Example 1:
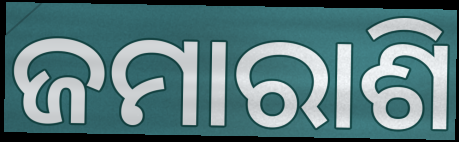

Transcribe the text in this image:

ଜମାରାଶି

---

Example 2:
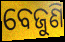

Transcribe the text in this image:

ବେଜୁଣି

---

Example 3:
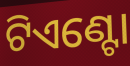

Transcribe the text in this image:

ଟିଏଣ୍ଟୋ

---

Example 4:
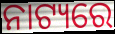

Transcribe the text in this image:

ନାଟ୍ୟରେ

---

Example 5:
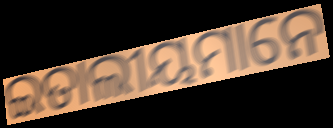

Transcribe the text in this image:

ଇତାଲୀୟମାନେ